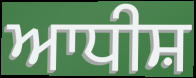
ਆਧੀਸ਼